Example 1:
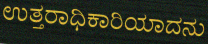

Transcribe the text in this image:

ಉತ್ತರಾಧಿಕಾರಿಯಾದನು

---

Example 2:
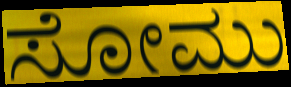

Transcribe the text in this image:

ಸೋಮು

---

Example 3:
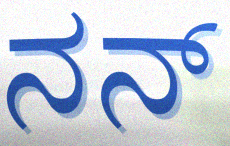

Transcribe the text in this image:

ನನ್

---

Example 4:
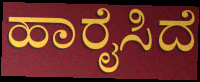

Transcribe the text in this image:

ಹಾರೈಸಿದೆ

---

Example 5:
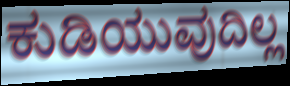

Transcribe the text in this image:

ಕುಡಿಯುವುದಿಲ್ಲ